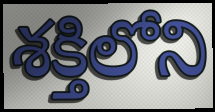
శక్తిలోని